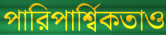
পারিপার্শ্বিকতাও